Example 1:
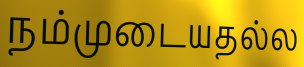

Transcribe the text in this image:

நம்முடையதல்ல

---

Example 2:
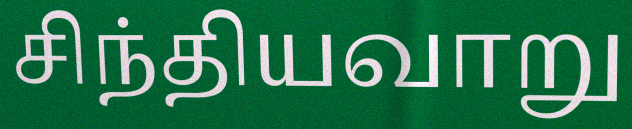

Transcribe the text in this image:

சிந்தியவாறு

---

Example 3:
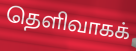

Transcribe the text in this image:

தெளிவாகக்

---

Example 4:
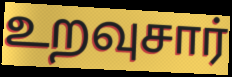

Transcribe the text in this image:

உறவுசார்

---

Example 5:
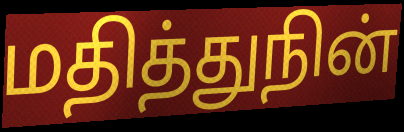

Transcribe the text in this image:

மதித்துநின்